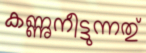
കണ്ണുനീട്ടുന്നതു്